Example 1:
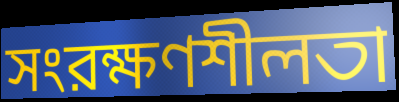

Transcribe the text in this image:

সংরক্ষণশীলতা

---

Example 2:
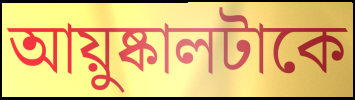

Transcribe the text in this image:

আয়ুষ্কালটাকে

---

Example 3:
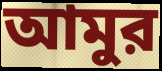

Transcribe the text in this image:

আমুর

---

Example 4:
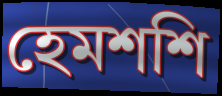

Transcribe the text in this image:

হেমশশি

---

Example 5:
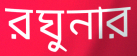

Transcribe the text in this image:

রঘুনার